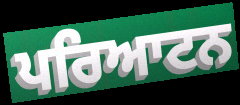
ਪਰਿਆਟਨ